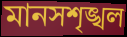
মানসশৃঙ্খল